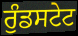
ਰੁੰਡਸਟੇਟ